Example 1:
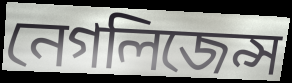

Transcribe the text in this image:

নেগলিজেন্স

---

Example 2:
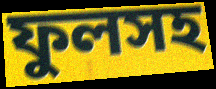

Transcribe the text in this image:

ফুলসহ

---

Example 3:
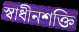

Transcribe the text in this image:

স্বাধীনশক্তি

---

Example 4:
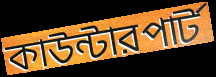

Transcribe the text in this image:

কাউন্টারপার্ট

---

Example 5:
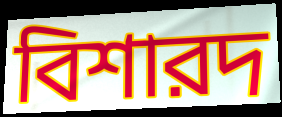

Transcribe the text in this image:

বিশারদ